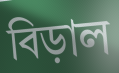
বিড়াল